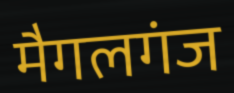
मैगलगंज